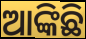
ଆଙ୍କିଛି